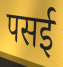
पसई